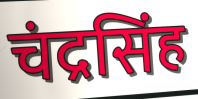
चंद्रसिंह